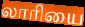
லாரியை